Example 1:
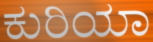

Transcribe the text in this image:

ಕುರಿಯಾ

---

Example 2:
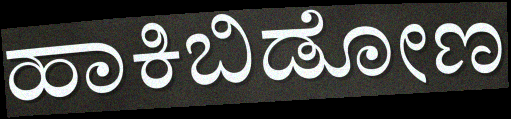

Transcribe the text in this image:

ಹಾಕಿಬಿಡೋಣ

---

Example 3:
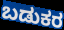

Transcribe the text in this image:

ಬಡುಕರ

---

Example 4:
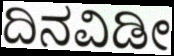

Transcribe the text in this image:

ದಿನವಿಡೀ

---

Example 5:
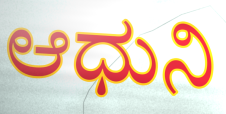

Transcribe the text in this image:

ಆಧುನಿ